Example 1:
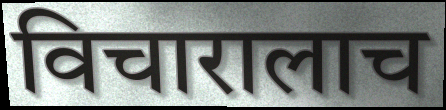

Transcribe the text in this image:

विचारालाच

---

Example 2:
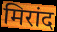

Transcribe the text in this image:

मिरांद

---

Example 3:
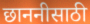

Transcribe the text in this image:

छाननीसाठी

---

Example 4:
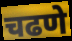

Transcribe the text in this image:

चढणे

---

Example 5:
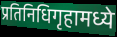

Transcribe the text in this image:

प्रतिनिधिगृहामध्ये